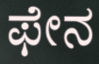
ಫೇನ